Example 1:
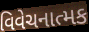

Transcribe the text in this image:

વિવેચનાત્મક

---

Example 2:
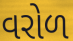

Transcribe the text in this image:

વરોળ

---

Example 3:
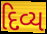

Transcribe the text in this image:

દિવ્ય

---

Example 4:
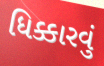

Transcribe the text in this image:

ધિક્કારવું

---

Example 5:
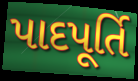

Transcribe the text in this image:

પાદપૂર્તિ